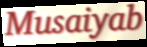
Musaiyab